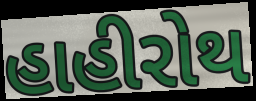
હાહીરોથ